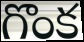
గొంక